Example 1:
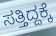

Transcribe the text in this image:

ಸತ್ತಿದ್ದಕ್ಕೆ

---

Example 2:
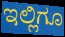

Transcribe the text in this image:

ಇಲ್ಲಿಗೂ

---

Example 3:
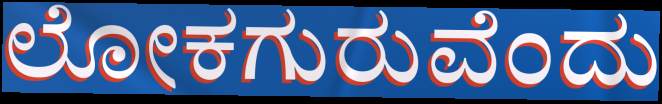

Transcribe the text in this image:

ಲೋಕಗುರುವೆಂದು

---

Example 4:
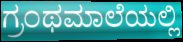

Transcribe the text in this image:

ಗ್ರಂಥಮಾಲೆಯಲ್ಲಿ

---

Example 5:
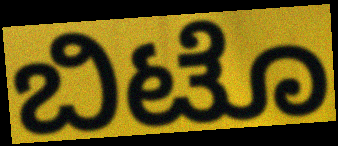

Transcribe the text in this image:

ಬಿಟೊ